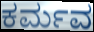
ಕರ್ಮವ